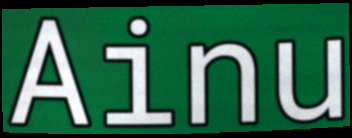
Ainu